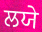
ਲਯੇ